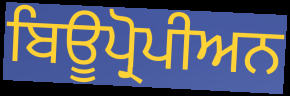
ਬਿਊਪ੍ਰੋਪੀਅਨ